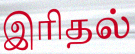
இரிதல்